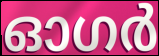
ഓഗർ